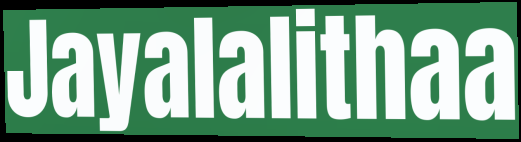
Jayalalithaa